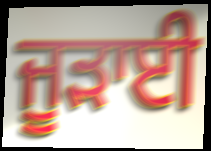
ਜੂੜਾਈ